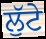
ਲੁੱਟੇ